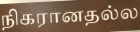
நிகரானதல்ல